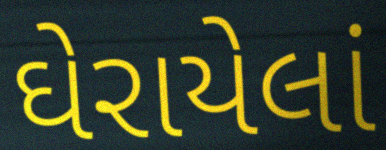
ઘેરાયેલાં